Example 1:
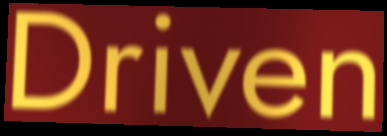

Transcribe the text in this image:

Driven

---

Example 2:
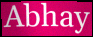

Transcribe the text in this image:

Abhay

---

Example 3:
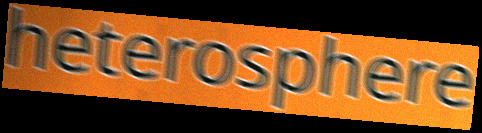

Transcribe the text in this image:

heterosphere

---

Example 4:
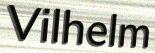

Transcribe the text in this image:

Vilhelm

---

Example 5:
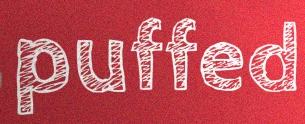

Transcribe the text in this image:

puffed